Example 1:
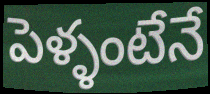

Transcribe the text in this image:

పెళ్ళంటేనే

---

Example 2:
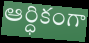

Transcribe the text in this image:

ఆర్ధికంగా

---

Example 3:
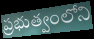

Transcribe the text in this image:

ప్రభుత్వంలోని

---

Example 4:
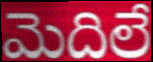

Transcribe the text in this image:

మెదిలే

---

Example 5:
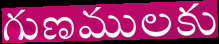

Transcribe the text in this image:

గుణములకు